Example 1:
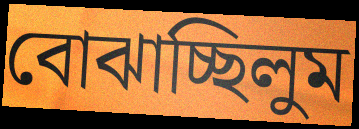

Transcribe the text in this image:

বোঝাচ্ছিলুম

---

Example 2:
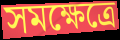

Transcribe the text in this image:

সমক্ষেত্রে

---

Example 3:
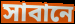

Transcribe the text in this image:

সাবানে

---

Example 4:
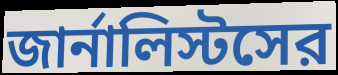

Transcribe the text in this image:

জার্নালিস্টসের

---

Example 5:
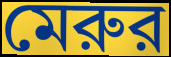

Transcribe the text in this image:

মেরুর